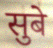
सुबे